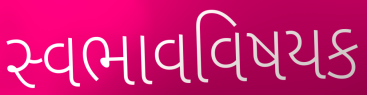
સ્વભાવવિષયક